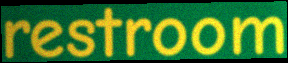
restroom